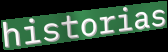
historias